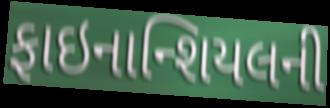
ફાઇનાન્શિયલની